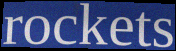
rockets